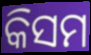
କିସମ